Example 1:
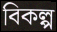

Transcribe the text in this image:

বিকল্প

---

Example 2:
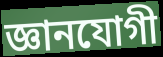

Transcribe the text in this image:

জ্ঞানযোগী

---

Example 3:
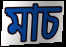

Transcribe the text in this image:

মাচ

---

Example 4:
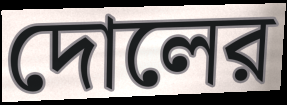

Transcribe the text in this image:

দোলের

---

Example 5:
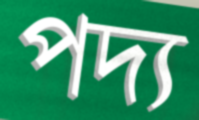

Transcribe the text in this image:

পদ্য